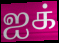
ஐக்